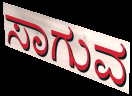
ಸಾಗುವ